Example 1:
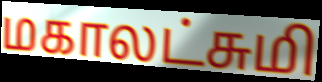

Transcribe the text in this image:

மகாலட்சுமி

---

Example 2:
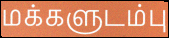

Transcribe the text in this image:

மக்களுடம்பு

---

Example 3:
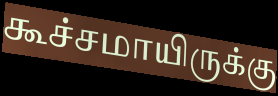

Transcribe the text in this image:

கூச்சமாயிருக்கு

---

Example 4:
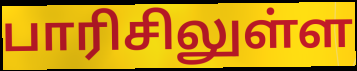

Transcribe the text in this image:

பாரிசிலுள்ள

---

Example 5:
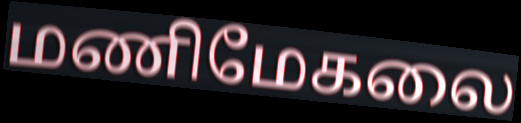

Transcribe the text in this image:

மணிமேகலை